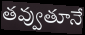
తవ్వుతూనే